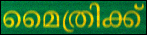
മൈത്രിക്ക്